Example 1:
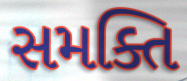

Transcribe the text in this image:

સમક્તિ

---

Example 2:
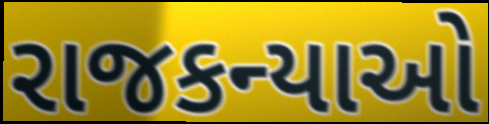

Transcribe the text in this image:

રાજકન્યાઓ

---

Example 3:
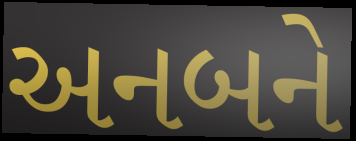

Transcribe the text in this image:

અનબને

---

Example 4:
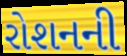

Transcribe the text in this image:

રોશનની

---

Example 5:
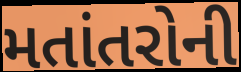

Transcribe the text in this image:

મતાંતરોની